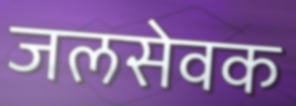
जलसेवक